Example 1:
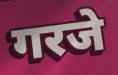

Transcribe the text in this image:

गरजे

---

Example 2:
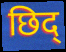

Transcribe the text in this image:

छिद्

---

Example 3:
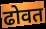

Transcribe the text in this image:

ढोवत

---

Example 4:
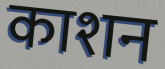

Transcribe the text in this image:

काशन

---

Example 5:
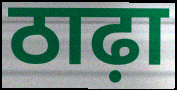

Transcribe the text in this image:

ठाढ़ा